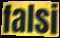
falsi